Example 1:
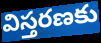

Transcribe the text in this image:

విస్తరణకు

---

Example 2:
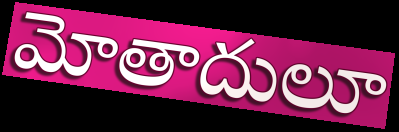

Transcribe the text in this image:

మోతాదులూ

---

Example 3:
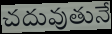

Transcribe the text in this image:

చదువుతునే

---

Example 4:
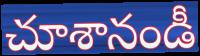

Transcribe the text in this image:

చూశానండీ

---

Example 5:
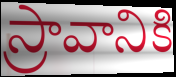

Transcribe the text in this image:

స్రావానికి